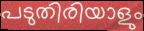
പടുതിരിയാളും